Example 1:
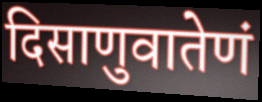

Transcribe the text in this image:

दिसाणुवातेणं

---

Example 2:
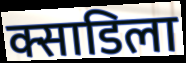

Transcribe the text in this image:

क्साडिला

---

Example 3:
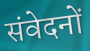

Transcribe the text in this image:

संवेदनों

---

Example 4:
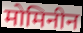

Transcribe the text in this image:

मोमिनीन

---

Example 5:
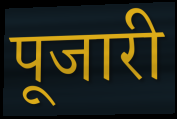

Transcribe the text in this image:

पूजारी